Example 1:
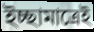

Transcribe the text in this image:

ইচ্ছামাত্রেই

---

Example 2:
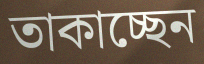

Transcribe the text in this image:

তাকাচ্ছেন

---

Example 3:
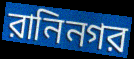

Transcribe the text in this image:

রানিনগর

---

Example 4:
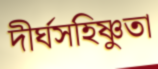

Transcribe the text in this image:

দীর্ঘসহিষ্ণুতা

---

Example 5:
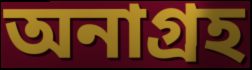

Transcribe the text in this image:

অনাগ্রহ